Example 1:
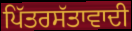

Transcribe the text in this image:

ਪਿੱਤਰਸੱਤਾਵਾਦੀ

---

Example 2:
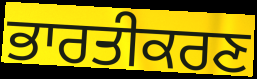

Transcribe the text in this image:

ਭਾਰਤੀਕਰਣ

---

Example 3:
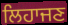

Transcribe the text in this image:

ਲਿਹਾਜਣ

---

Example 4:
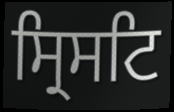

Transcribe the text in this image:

ਸ੍ਰਿਸਟਿ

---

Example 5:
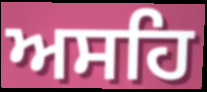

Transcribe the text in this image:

ਅਸਹਿ